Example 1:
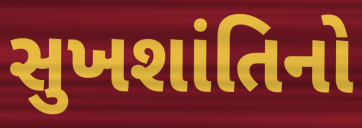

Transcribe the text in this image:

સુખશાંતિનો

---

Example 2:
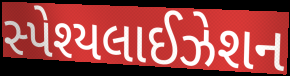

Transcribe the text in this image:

સ્પેશ્યલાઈઝેશન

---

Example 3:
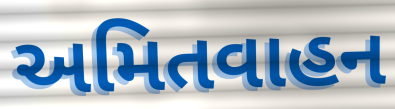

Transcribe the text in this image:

અમિતવાહન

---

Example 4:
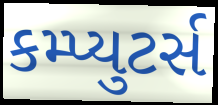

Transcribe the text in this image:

કમ્પ્યુટર્સ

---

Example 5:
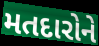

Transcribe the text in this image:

મતદારોને